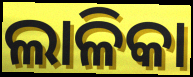
ଲାଳିକା